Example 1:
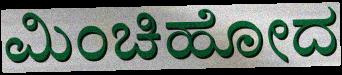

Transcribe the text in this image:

ಮಿಂಚಿಹೋದ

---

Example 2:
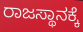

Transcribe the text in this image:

ರಾಜಸ್ಥಾನಕ್ಕೆ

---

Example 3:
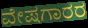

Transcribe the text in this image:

ವೇಷಗಾರರ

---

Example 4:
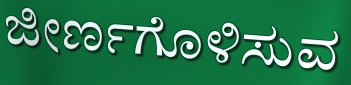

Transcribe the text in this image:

ಜೀರ್ಣಗೊಳಿಸುವ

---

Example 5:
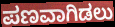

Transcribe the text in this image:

ಪಣವಾಗಿಡಲು